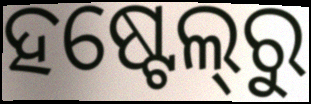
ହଷ୍ଟେଲ୍‍ରୁ